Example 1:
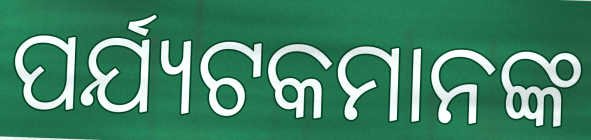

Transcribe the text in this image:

ପର୍ଯ୍ୟଟକମାନଙ୍କ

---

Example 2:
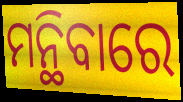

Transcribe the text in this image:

ମନ୍ଥିବାରେ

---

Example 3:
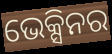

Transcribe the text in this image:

ଭେକ୍ସିନର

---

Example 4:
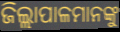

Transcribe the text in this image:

ଜିଲ୍ଲାପାଳମାନଙ୍କୁ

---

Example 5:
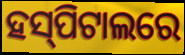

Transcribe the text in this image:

ହସ୍‌ପିଟାଲରେ